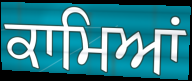
ਕਾਮਿਆਂ